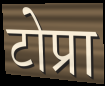
टोप्रा